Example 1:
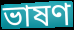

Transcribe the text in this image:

ভাষণ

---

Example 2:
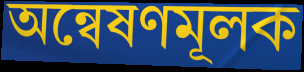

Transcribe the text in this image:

অন্বেষণমূলক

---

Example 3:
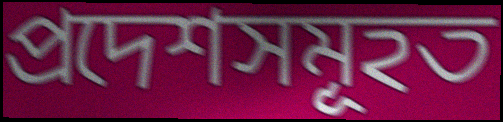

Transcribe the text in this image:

প্ৰদেশসমূহত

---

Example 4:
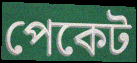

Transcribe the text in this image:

পেকেট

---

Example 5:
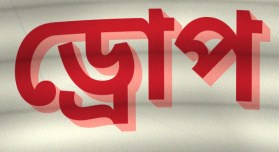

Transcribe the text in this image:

ড্ৰোপ